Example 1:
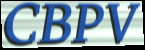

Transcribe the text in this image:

CBPV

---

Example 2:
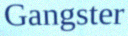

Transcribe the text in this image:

Gangster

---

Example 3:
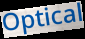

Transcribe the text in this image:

Optical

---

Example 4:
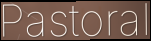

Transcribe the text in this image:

Pastoral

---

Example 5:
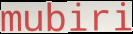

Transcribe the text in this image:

mubiri